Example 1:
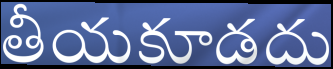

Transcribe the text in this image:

తీయకూడదు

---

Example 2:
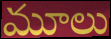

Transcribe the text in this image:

మూలు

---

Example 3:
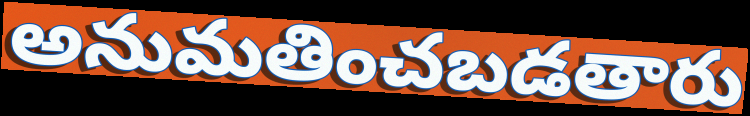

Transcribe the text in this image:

అనుమతించబడతారు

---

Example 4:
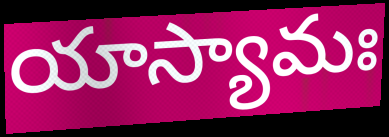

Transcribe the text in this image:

యాస్యామః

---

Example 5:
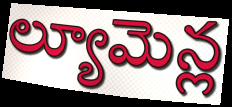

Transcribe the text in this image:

ల్యూమెన్ల